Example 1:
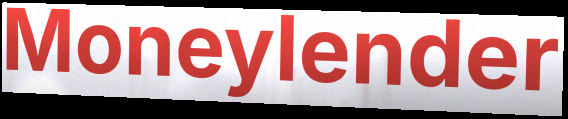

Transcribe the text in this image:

Moneylender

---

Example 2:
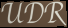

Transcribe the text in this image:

UDR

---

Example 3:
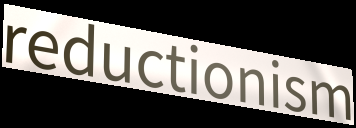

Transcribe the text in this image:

reductionism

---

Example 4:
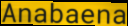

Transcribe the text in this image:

Anabaena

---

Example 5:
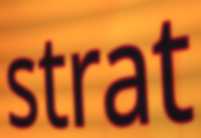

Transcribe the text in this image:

strat